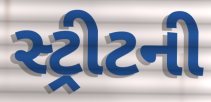
સ્ટ્રીટની